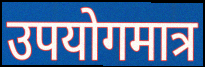
उपयोगमात्र